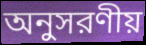
অনুসরণীয়